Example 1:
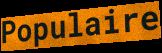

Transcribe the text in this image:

Populaire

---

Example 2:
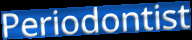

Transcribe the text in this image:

Periodontist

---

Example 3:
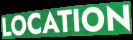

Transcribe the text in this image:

LOCATION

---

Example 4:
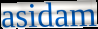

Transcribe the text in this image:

asidam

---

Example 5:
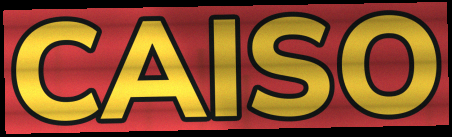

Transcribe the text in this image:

CAISO